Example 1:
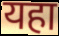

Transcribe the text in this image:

यहा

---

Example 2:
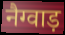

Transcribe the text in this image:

नैग्वाड़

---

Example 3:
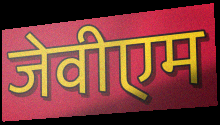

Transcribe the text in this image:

जेवीएम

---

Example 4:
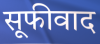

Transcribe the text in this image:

सूफीवाद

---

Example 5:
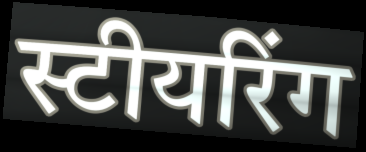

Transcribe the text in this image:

स्टीयरिंग